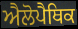
ਐਲੋਪੈਥਿਕ